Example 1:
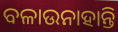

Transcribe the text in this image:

ବଳାଉନାହାନ୍ତି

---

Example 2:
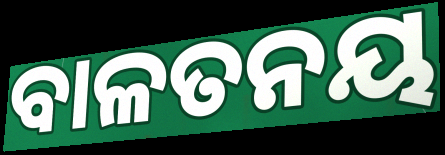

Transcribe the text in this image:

ବାଳତନୟ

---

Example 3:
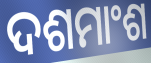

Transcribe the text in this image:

ଦଶମାଂଶ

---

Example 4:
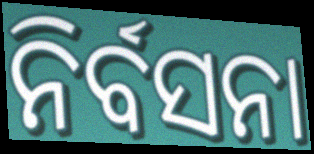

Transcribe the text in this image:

ନିର୍ବସନା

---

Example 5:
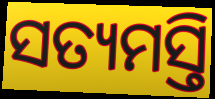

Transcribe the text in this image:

ସତ୍ୟମସ୍ତି